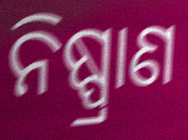
ନିଷ୍ପ୍ରାଣ